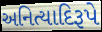
અનિત્યાદિરૂપે